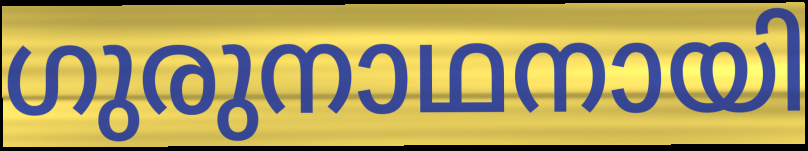
ഗുരുനാഥനായി